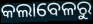
କଲାବେଳରୁ